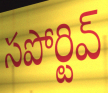
సపోర్టివ్